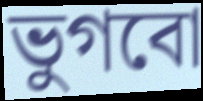
ভুগবো